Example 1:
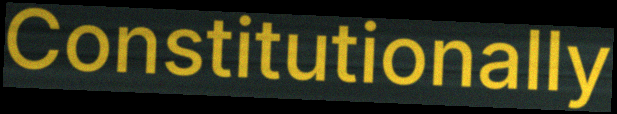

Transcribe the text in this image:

Constitutionally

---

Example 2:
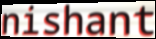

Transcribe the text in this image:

nishant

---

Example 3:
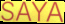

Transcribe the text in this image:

SAYA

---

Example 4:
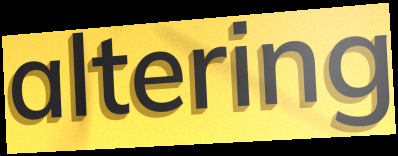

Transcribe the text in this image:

altering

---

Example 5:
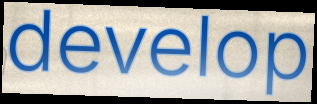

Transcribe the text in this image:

develop